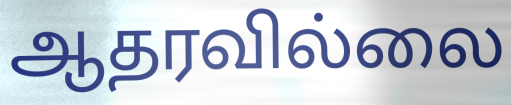
ஆதரவில்லை